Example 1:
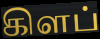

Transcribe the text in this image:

கிளப்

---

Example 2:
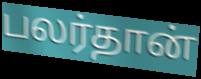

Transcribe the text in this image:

பலர்தான்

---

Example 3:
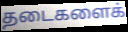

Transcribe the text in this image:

தடைகளைக்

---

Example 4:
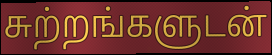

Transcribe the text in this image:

சுற்றங்களுடன்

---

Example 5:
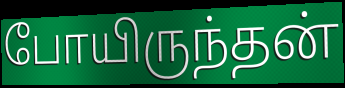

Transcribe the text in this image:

போயிருந்தன்